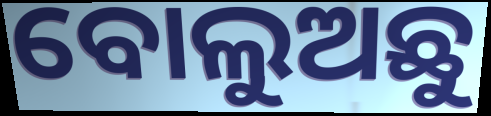
ବୋଲୁଅଛୁ